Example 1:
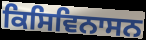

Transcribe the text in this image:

ਕਿਸਿਵਿਨਾਸਨ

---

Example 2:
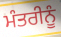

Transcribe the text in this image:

ਮੰਤਰੀਨੂੰ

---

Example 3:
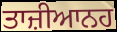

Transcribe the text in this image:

ਤਾਜ਼ੀਆਨਹ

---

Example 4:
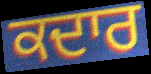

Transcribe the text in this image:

ਕਦਾਰ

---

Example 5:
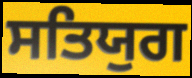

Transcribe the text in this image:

ਸਤਿਯੁਗ